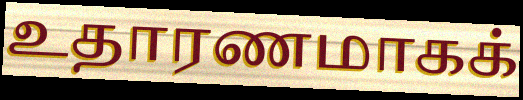
உதாரணமாகக்